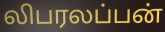
லிபரலப்பன்